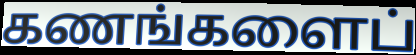
கணங்களைப்